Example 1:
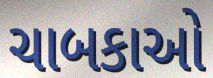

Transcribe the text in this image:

ચાબકાઓ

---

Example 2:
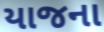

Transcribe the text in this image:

યાજના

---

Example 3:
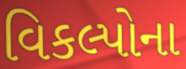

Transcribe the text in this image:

વિકલ્પોના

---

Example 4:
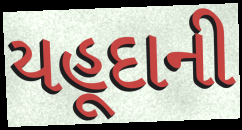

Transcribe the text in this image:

યહૂદાની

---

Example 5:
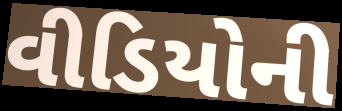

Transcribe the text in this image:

વીડિયોની